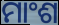
ମାଂଶ